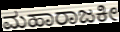
ಮಹಾರಾಜಕೀ